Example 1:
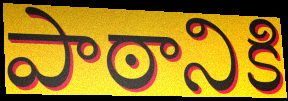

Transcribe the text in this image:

పాఠానికి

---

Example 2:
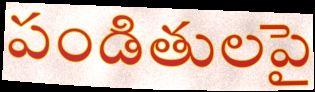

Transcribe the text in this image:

పండితులపై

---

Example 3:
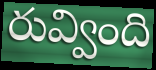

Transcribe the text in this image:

రువ్వింది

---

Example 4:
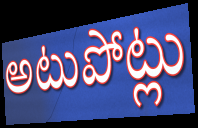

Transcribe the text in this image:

అటుపోట్లు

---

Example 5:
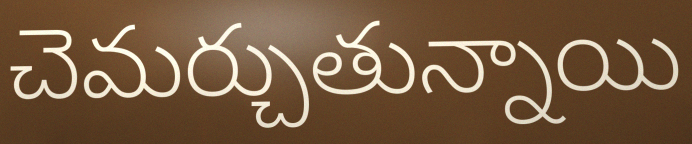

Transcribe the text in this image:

చెమర్చుతున్నాయి